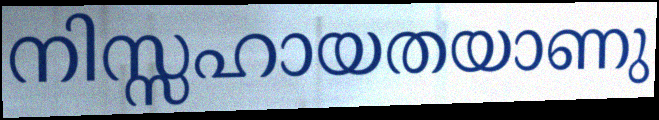
നിസ്സഹായതയാണു